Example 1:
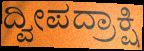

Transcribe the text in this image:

ದ್ವೀಪದ್ರಾಕ್ಷಿ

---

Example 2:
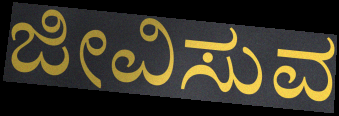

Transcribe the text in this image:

ಜೀವಿಸುವ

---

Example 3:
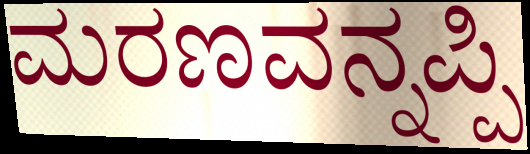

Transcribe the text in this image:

ಮರಣವನ್ನಪ್ಪಿ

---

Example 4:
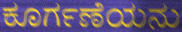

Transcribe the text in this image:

ಕೂರ್ಗಣೆಯನು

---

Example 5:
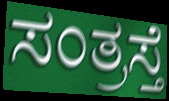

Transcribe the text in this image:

ಸಂತ್ರಸ್ತೆ